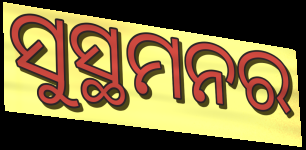
ସୁସ୍ଥମନର